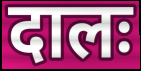
दालः